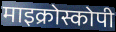
माइक्रोस्कोपी